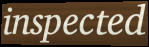
inspected